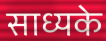
साध्यके